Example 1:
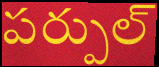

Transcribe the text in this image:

పర్పుల్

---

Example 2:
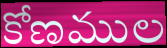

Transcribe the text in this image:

కోణముల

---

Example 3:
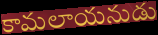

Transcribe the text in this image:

కామలాయనుడు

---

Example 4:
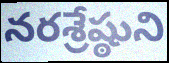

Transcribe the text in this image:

నరశ్రేష్ఠుని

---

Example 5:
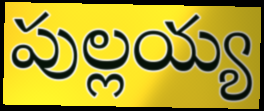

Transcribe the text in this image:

పుల్లయ్య